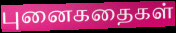
புனைகதைகள்